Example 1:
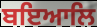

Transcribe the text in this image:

ਬਇਆਲਿ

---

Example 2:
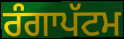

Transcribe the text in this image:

ਰੰਗਾਪੱਟਮ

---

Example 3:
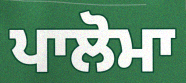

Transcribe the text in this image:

ਪਾਲੋਮਾ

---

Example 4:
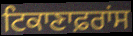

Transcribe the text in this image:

ਟਿਕਾਣਾਫ਼ਰਾਂਸ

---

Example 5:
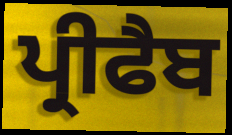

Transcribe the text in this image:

ਪ੍ਰੀਫੈਬ